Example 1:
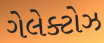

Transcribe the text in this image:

ગેલેક્ટોઝ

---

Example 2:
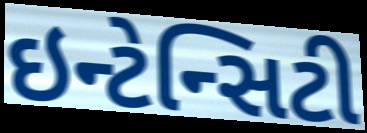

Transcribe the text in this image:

ઇન્ટેન્સિટી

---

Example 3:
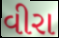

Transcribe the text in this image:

વીરા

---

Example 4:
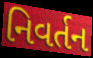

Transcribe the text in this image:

નિવર્તન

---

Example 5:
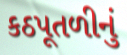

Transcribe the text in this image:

કઠપૂતળીનું